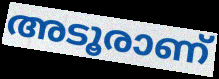
അടൂരാണ്